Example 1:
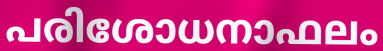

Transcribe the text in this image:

പരിശോധനാഫലം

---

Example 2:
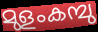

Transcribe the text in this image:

മുളംകമ്പു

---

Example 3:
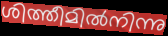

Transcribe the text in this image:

ശിത്തീമിൽനിന്നു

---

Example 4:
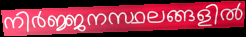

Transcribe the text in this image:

നിർജ്ജനസ്ഥലങ്ങളിൽ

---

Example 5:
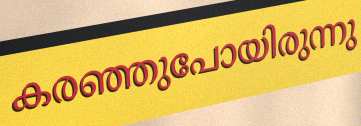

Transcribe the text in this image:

കരഞ്ഞുപോയിരുന്നു